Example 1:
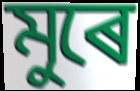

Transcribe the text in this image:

মুৰে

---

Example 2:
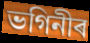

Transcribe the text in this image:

ভগিনীৰ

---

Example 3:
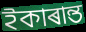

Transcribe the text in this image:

ইকাৰান্ত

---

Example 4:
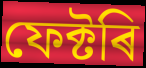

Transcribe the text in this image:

ফেক্টৰি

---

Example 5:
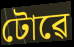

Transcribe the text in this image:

টোৱে